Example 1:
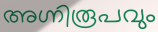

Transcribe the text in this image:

അഗ്നിരൂപവും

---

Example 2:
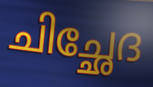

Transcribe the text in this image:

ചിച്ഛേദ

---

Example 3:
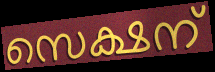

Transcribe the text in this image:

സെക്ഷന്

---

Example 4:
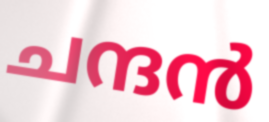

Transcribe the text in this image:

ചന്ദൻ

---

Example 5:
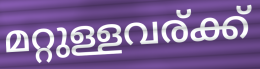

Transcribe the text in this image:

മറ്റുള്ളവര്ക്ക്